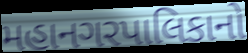
મહાનગરપાલિકાનો